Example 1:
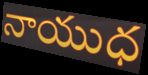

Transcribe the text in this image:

నాయుధ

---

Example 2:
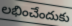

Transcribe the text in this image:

లభించేందుకు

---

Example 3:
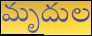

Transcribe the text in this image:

మృదుల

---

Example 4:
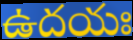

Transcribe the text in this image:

ఉదయః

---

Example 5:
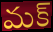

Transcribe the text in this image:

మక్